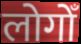
लोगोँ